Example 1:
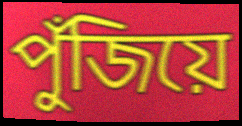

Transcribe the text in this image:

পুঁজিয়ে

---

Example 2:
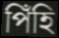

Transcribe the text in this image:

পিঁহি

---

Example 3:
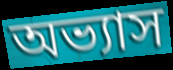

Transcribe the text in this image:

অভ্যাস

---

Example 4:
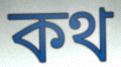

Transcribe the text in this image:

কথ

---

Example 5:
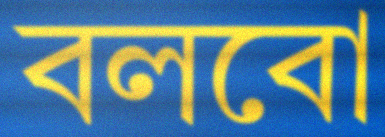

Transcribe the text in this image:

বলবো